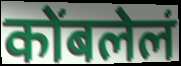
कोंबलेलं